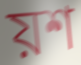
য়শ